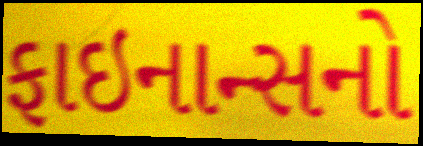
ફાઇનાન્સનો